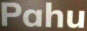
Pahu